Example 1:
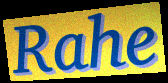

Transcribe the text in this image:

Rahe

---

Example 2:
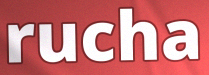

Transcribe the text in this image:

rucha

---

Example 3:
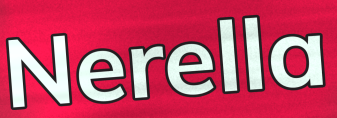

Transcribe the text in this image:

Nerella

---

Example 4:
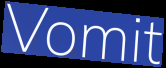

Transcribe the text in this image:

Vomit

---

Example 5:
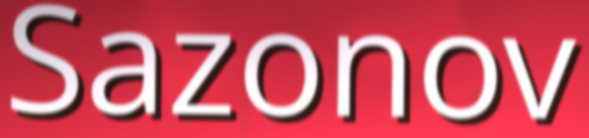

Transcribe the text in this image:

Sazonov